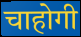
चाहोगी